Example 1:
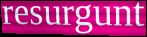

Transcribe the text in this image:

resurgunt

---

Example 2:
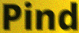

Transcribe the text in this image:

Pind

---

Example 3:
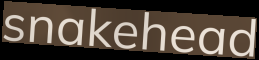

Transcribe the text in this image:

snakehead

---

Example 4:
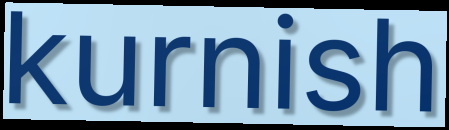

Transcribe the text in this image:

kurnish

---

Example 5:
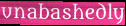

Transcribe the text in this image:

unabashedly